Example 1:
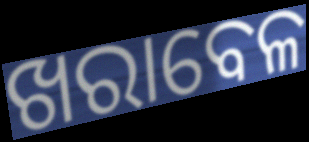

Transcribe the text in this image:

ଖରାବେଳ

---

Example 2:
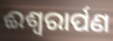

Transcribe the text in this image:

ଈଶ୍ୱରାର୍ପଣ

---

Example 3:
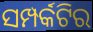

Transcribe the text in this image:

ସମ୍ପର୍କଟିର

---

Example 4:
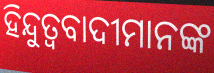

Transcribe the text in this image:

ହିନ୍ଦୁତ୍ଵବାଦୀମାନଙ୍କ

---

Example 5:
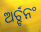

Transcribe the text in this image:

ଅର୍ଚ୍ଚନଂ